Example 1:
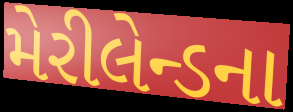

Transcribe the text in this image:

મેરીલેન્ડના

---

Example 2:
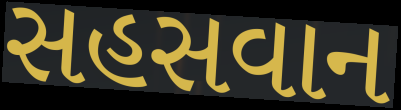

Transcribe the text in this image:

સહસવાન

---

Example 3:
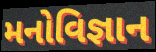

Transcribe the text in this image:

મનોવિજ્ઞાન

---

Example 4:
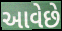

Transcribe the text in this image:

આવેછે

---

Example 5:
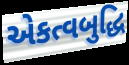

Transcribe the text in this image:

એકત્વબુદ્ધિ